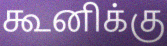
கூனிக்கு